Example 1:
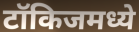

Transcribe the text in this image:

टॉकिजमध्ये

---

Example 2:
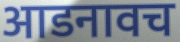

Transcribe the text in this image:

आडनावच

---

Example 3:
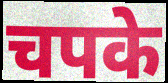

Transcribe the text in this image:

चपके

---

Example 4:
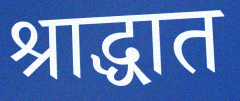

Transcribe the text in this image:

श्राद्धात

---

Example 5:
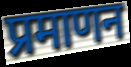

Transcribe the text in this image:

प्रमाणन